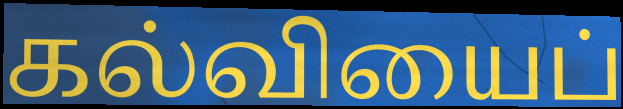
கல்வியைப்